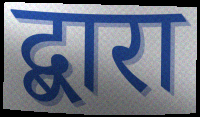
द्बारा